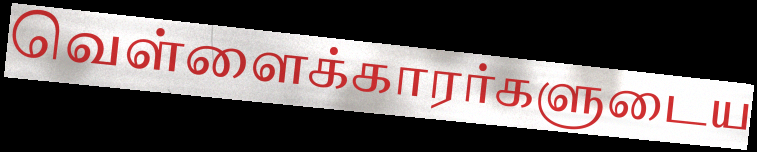
வெள்ளைக்காரர்களுடைய